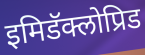
इमिडॅक्लोप्रिड